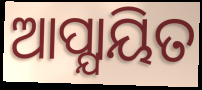
ଆପ୍ଯାୟିତ